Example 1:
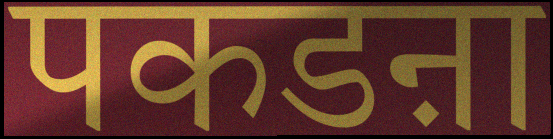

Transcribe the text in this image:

पकडऩा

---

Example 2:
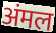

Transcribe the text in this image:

अंमल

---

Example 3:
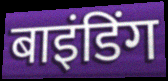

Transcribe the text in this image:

बाइंडिंग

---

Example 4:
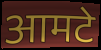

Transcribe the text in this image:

आमटे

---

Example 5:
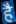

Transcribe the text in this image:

है